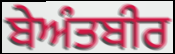
ਬੇਅੰਤਬੀਰ